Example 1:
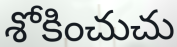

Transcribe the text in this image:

శోకించుచు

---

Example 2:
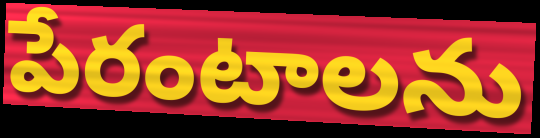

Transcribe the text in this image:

పేరంటాలను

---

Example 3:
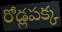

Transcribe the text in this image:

రోడ్లపక్క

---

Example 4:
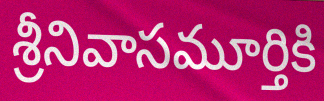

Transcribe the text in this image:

శ్రీనివాసమూర్తికి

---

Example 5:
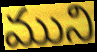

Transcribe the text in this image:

ముని